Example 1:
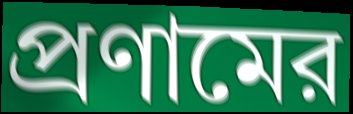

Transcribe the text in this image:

প্রণামের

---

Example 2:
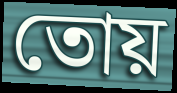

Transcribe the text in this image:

তোয়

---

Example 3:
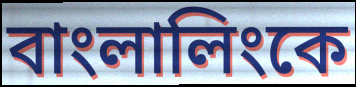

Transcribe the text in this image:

বাংলালিংকে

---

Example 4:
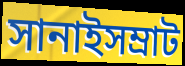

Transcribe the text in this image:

সানাইসম্রাট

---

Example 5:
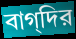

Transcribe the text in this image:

বাগ্‌দির